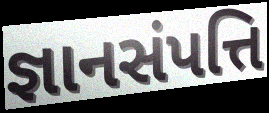
જ્ઞાનસંપત્તિ